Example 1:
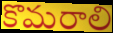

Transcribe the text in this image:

కొమరాలి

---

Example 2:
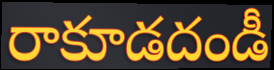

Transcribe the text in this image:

రాకూడదండీ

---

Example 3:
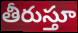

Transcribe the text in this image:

తీరుస్తూ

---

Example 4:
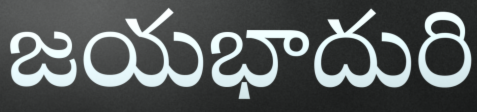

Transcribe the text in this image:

జయభాదురి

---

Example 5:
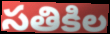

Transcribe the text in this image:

సతికిల